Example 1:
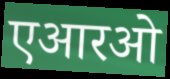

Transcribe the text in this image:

एआरओ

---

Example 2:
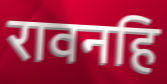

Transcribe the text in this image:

रावनहि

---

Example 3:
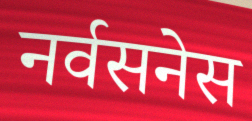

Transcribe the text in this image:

नर्वसनेस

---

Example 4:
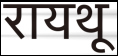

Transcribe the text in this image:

रायथू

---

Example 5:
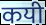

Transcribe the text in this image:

कयी